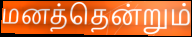
மனத்தென்றும்